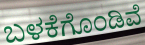
ಬಳಕೆಗೊಂಡಿವೆ